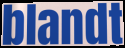
blandt